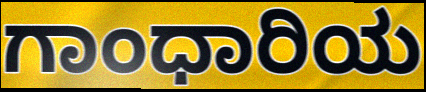
ಗಾಂಧಾರಿಯ